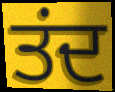
ਤਂਦ